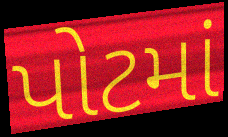
પોટમાં